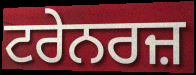
ਟਰੇਨਰਜ਼